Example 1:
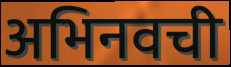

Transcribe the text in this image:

अभिनवची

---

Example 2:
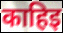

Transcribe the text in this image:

काहिइ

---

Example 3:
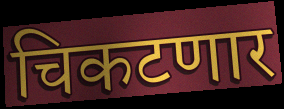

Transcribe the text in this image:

चिकटणार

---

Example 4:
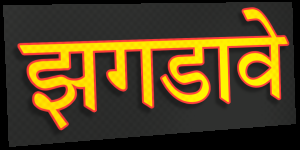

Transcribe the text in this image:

झगडावे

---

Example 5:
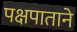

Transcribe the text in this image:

पक्षपाताने